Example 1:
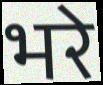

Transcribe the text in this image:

भरे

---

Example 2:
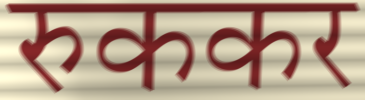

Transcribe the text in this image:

रुककर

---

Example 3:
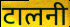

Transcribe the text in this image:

टालनी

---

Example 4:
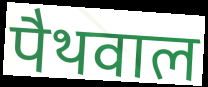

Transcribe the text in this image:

पैथवाल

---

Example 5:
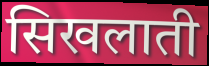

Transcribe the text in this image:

सिखलाती